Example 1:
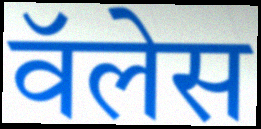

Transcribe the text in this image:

वॅलेस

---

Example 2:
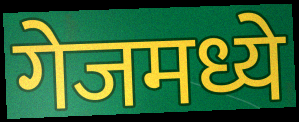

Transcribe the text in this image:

गेजमध्ये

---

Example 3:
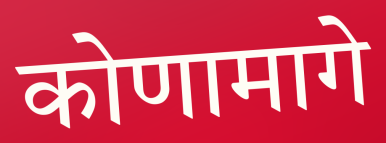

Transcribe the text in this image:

कोणामागे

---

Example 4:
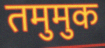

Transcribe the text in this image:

तमुमुक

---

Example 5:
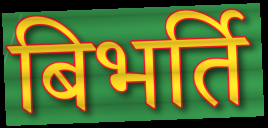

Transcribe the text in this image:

बिभर्ति